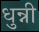
धुन्नी